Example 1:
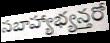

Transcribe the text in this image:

సబాహ్యాభ్యన్తరో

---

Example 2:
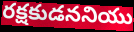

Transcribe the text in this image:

రక్షకుడననియు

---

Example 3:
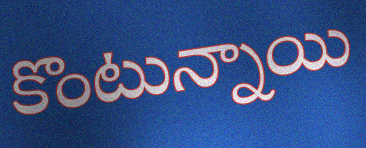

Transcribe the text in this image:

కొంటున్నాయి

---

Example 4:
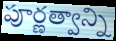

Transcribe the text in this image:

పూర్ణత్వాన్ని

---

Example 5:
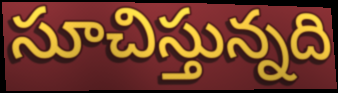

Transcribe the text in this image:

సూచిస్తున్నది